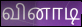
வினாடி